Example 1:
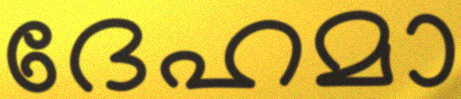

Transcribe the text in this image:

ദേഹമാ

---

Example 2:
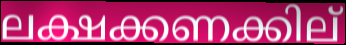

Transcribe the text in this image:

ലക്ഷക്കണക്കില്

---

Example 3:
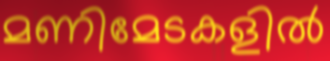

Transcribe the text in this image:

മണിമേടകളിൽ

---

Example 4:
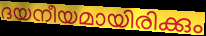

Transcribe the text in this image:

ദയനീയമായിരിക്കും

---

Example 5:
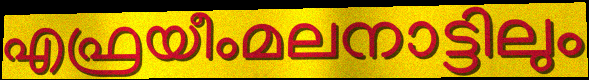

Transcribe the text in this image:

എഫ്രയീംമലനാട്ടിലും